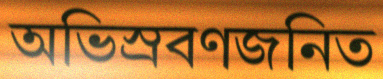
অভিস্রবণজনিত